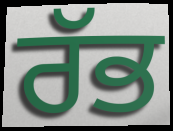
ਰੱਭ